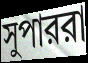
সুপাররা